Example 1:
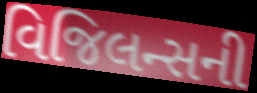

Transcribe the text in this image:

વિજિલન્સની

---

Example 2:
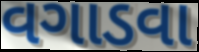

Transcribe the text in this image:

વગાડવા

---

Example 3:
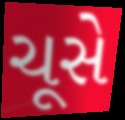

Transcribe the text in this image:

ચૂસે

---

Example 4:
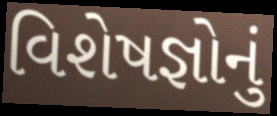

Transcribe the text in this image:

વિશેષજ્ઞોનું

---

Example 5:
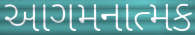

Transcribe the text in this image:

આગમનાત્મક